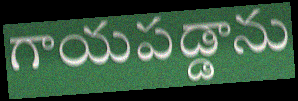
గాయపడ్డాను